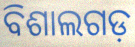
ବିଶାଲଗଡ଼